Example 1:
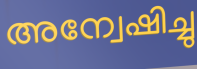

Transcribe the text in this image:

അന്വേഷിച്ചു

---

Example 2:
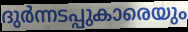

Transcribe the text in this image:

ദുർന്നടപ്പുകാരെയും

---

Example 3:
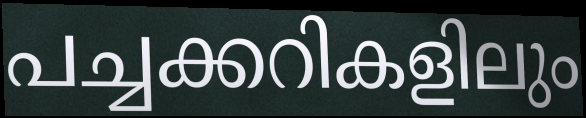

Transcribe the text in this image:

പച്ചക്കറികളിലും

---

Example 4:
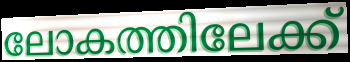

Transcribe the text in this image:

ലോകത്തിലേക്ക്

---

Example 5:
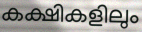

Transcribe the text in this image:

കക്ഷികളിലും